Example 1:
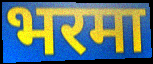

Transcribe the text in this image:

भरमा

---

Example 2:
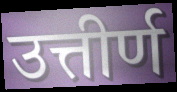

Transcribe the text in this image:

उत्तीर्ण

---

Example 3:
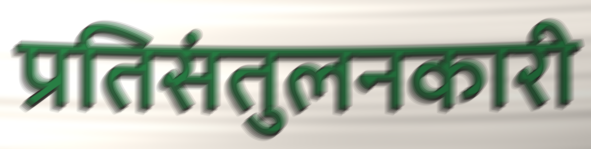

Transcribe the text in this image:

प्रतिसंतुलनकारी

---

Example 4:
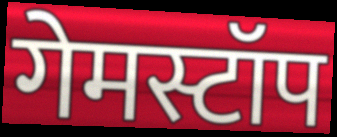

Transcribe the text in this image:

गेमस्टॉप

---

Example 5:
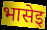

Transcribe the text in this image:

भासेइ